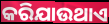
କରିଯାଉଥାଏ